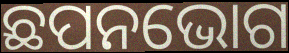
ଛପନଭୋଗ